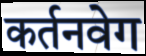
कर्तनवेग